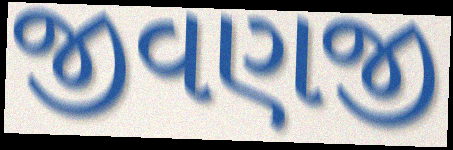
જીવણજી